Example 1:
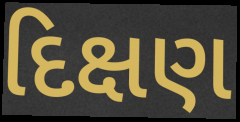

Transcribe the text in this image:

દિક્ષણ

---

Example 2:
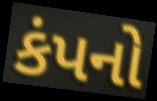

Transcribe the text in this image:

કંપનો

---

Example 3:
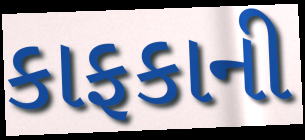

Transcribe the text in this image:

કાફકાની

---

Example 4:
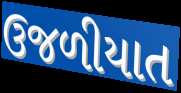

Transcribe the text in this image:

ઉજળીયાત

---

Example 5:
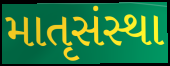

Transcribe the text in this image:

માતૃસંસ્થા